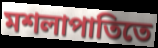
মশলাপাতিতে